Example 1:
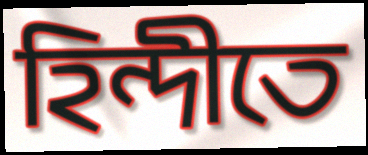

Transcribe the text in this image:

হিন্দীতে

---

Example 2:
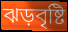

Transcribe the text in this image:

ঝড়বৃষ্টি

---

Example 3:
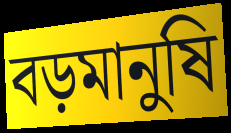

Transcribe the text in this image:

বড়মানুষি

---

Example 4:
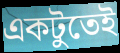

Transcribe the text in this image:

একটুতেই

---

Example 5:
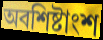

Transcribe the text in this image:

অবশিষ্টাংশ